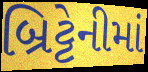
બ્રિટ્ટેનીમાં